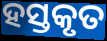
ହସ୍ତକୃତ